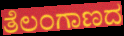
ತೆಲಂಗಾಣದ